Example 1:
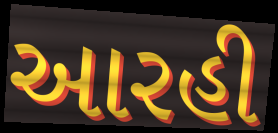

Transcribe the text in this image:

આરહી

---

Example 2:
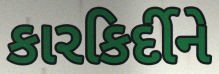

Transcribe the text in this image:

કારકિર્દીને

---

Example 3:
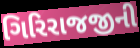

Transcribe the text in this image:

ગિરિરાજજીની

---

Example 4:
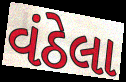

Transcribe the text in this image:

વંઠેલા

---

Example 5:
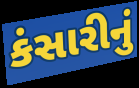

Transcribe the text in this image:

કંસારીનું